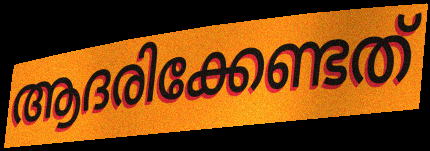
ആദരിക്കേണ്ടത്